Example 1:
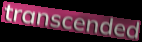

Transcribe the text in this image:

transcended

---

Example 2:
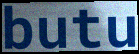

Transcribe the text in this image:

butu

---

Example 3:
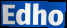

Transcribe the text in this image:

Edho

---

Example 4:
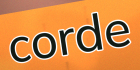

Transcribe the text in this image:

corde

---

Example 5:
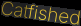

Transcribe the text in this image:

Catfished